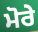
ਮੋਰੇ